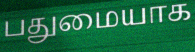
பதுமையாக